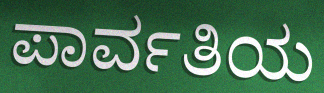
ಪಾರ್ವತಿಯ